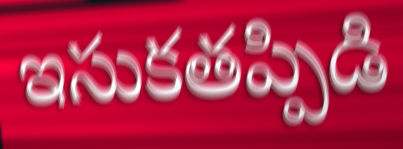
ఇసుకతప్పిడి